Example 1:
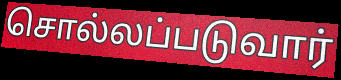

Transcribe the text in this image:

சொல்லப்படுவார்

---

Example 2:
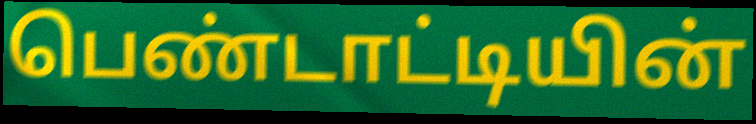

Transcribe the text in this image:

பெண்டாட்டியின்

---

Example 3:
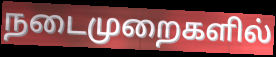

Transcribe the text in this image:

நடைமுறைகளில்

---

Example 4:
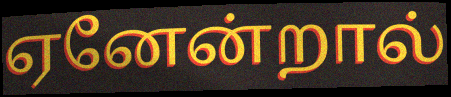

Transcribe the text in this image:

ஏனேன்றால்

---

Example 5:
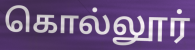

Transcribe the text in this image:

கொல்லூர்